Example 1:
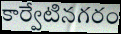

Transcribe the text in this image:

కార్వేటినగరం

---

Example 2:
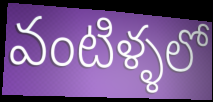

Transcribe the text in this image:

వంటిళ్ళలో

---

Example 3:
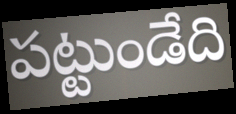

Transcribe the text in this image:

పట్టుండేది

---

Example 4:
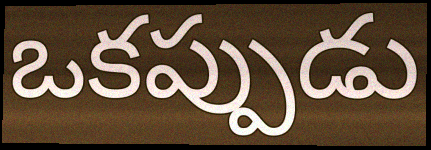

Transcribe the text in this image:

ఒకప్పుడు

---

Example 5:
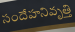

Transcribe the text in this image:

సందేహనివృత్తి